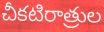
చీకటిరాత్రుల